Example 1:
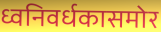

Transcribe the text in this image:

ध्वनिवर्धकासमोर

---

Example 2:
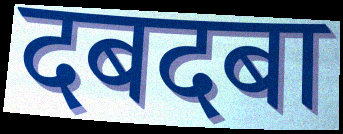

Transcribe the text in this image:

दबदबा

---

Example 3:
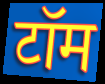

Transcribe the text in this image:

टॉम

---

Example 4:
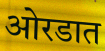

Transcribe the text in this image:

ओरडात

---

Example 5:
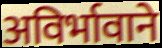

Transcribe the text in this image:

अविर्भावाने